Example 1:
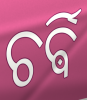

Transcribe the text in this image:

ଚର୍ଵି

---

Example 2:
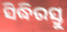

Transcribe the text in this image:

ସିଦ୍ଧିରସ୍ତୁ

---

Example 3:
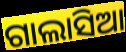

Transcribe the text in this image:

ଗାଲାସିଆ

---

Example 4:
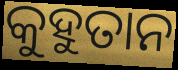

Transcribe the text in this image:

କୁହୁତାନ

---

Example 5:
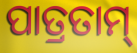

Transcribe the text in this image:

ପାତ୍ରତାମ୍